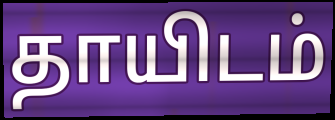
தாயிடம்